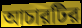
আচারটির